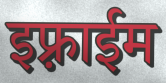
इफ़्राईम